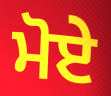
ਮੋਏ